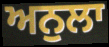
ਅਨੁਲਾ